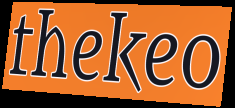
thekeo